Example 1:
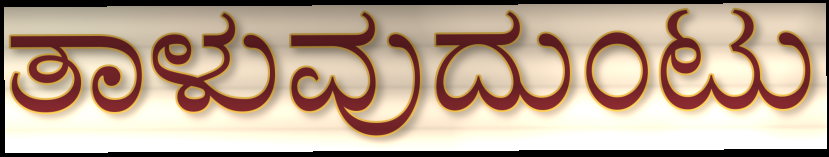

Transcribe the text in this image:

ತಾಳುವುದುಂಟು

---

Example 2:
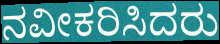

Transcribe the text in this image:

ನವೀಕರಿಸಿದರು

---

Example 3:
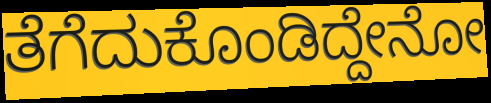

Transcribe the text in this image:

ತೆಗೆದುಕೊಂಡಿದ್ದೇನೋ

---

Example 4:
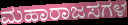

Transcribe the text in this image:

ಮಹಾರಾಜಸಗಳ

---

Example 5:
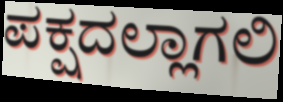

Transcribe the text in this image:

ಪಕ್ಷದಲ್ಲಾಗಲಿ